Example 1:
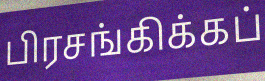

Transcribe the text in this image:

பிரசங்கிக்கப்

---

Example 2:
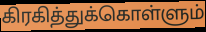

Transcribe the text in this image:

கிரகித்துக்கொள்ளும்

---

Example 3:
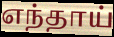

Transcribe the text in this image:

எந்தாய்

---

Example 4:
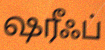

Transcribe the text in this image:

ஷரீஃப்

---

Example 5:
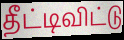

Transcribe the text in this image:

தீட்டிவிட்டு